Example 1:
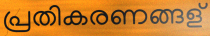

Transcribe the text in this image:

പ്രതികരണങ്ങള്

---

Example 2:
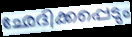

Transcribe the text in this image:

ഛേദിക്കപ്പെടും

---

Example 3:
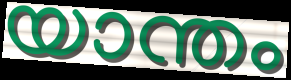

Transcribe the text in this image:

യാന്തം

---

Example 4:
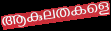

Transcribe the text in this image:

ആകുലതകളെ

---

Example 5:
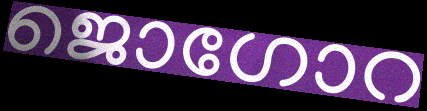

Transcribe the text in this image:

ജൊഗോറ